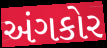
અંગકોર